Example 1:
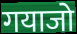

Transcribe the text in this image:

गयाजो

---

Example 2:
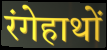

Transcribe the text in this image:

रंगेहाथों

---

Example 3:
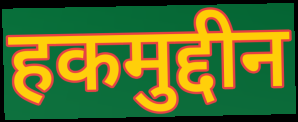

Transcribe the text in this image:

हकमुद्दीन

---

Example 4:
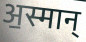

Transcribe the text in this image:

अ॒स्मान्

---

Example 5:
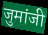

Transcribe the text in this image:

जुमांजी